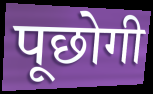
पूछोगी